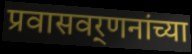
प्रवासवर्णनांच्या